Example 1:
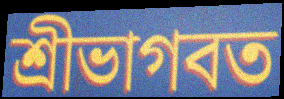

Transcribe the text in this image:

শ্রীভাগবত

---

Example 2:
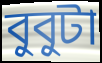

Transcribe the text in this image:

বুবুটা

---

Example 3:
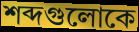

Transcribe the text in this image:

শব্দগুলোকে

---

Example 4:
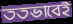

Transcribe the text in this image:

ততভাবেই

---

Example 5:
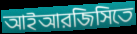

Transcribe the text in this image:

আইআরজিসিতে